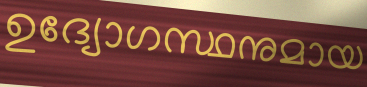
ഉദ്യോഗസ്ഥനുമായ